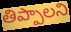
తిప్పాలని